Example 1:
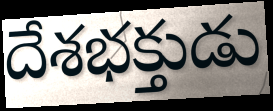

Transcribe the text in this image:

దేశభక్తుడు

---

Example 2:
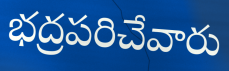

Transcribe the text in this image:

భద్రపరిచేవారు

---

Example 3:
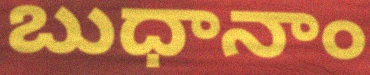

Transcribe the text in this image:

బుధానాం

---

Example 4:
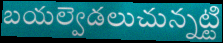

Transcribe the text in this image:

బయల్వెడలుచున్నట్టి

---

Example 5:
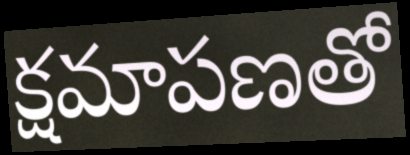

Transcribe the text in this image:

క్షమాపణతో